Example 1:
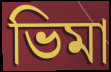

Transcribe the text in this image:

ভিমা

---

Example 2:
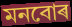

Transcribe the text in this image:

মনবোৰ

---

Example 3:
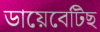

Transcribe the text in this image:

ডায়েবেটিছ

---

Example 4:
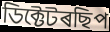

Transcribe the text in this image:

ডিক্টেটৰছিপ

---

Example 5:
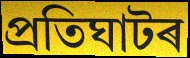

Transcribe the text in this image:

প্ৰতিঘাটৰ